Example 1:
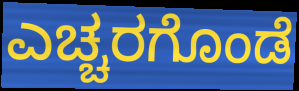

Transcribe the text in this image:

ಎಚ್ಚರಗೊಂಡೆ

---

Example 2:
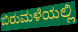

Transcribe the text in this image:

ಬಿರುಮಳೆಯಲ್ಲಿ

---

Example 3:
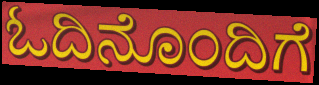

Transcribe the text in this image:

ಓದಿನೊಂದಿಗೆ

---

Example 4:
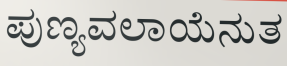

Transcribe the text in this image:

ಪುಣ್ಯವಲಾಯೆನುತ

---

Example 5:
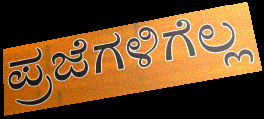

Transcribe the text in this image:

ಪ್ರಜೆಗಳಿಗೆಲ್ಲ